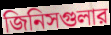
জিনিসগুলার